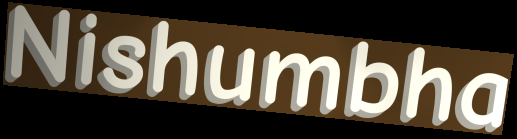
Nishumbha